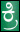
ಕ್ರಿ